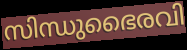
സിന്ധുഭൈരവി